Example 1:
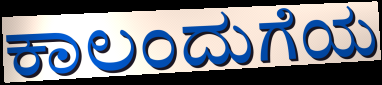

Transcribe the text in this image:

ಕಾಲಂದುಗೆಯ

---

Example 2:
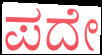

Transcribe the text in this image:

ಪದೇ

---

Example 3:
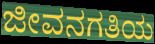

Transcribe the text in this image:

ಜೀವನಗತಿಯ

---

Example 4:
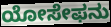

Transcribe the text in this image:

ಯೋಸೇಫನು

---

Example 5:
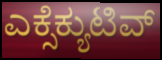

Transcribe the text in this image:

ಎಕ್ಸೆಕ್ಯುಟಿವ್